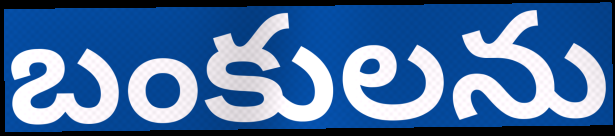
బంకులను